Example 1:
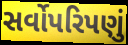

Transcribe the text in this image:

સર્વોપરિપણું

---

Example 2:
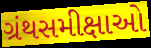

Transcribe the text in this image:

ગ્રંથસમીક્ષાઓ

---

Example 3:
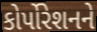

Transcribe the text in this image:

કોર્પોરેશનને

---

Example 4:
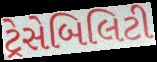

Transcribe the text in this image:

ટ્રેસેબિલિટી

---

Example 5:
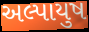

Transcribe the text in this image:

અલ્પાયુષ